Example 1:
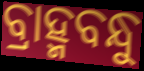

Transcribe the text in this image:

ବ୍ରାହ୍ମବନ୍ଧୁ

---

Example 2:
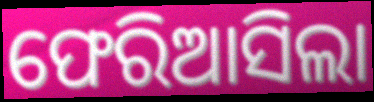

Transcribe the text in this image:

ଫେରିଆସିଲା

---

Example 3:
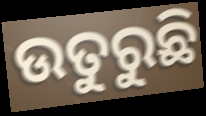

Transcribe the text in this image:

ଉତୁରୁଛି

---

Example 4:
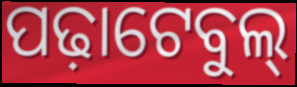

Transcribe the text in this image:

ପଢ଼ାଟେବୁଲ୍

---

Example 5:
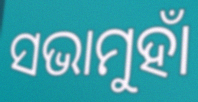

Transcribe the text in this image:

ସଭାମୁହାଁ